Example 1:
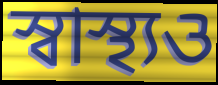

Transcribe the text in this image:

স্বাস্থ্যও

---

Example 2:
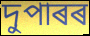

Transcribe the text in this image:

দুপাৰৰ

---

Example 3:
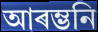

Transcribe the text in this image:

আৰম্ভনি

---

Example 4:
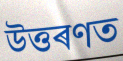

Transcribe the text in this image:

উত্তৰণত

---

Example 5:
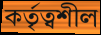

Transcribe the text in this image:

কৰ্তৃত্বশীল